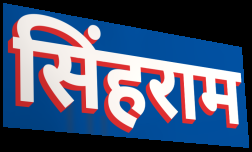
सिंहराम